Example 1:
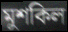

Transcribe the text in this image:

মুশকিল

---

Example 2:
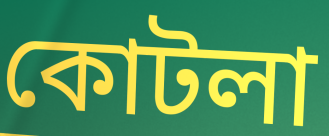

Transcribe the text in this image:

কোটলা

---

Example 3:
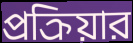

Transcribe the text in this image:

প্রক্রিয়ার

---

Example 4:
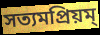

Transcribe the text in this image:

সত্যমপ্রিয়ম্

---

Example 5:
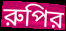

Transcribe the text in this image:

রুপির